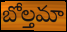
బోల్తమా